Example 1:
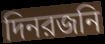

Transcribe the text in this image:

দিনরজনি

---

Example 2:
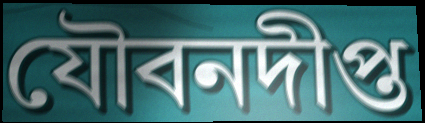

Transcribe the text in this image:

যৌবনদীপ্ত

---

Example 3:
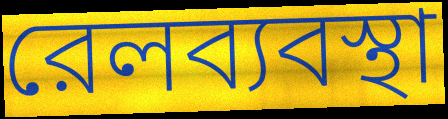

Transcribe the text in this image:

রেলব্যবস্থা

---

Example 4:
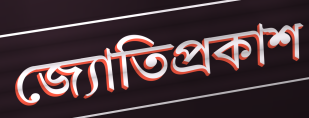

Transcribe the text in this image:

জ্যোতিপ্রকাশ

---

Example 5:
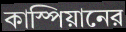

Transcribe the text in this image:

কাস্পিয়ানের